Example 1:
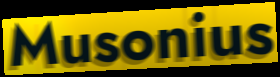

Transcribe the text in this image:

Musonius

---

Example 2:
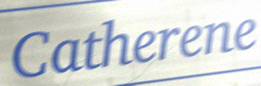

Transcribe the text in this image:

Catherene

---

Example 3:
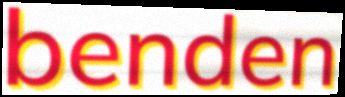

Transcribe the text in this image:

benden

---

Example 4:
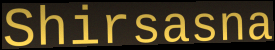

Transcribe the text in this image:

Shirsasna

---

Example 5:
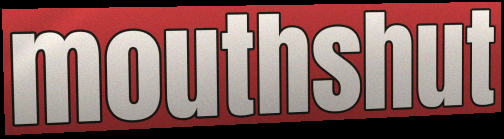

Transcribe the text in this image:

mouthshut